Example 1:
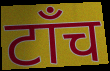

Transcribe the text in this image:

टाँच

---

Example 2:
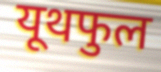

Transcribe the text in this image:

यूथफुल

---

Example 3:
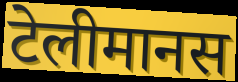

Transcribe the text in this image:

टेलीमानस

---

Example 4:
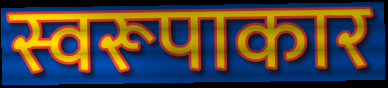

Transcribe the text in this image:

स्वरूपाकार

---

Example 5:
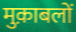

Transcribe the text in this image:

मुक़ाबलों